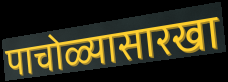
पाचोळ्यासारखा